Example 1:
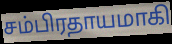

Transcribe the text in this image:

சம்பிரதாயமாகி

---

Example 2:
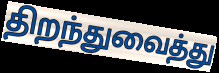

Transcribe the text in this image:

திறந்துவைத்து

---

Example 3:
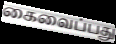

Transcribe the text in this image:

கைவைப்பது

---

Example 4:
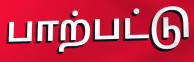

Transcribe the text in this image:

பாற்பட்டு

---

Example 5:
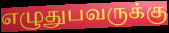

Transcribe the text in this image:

எழுதுபவருக்கு